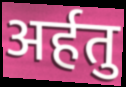
अर्हतु